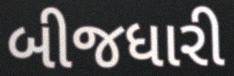
બીજધારી